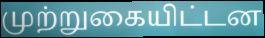
முற்றுகையிட்டன